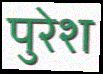
पुरेश